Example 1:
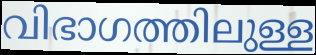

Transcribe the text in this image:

വിഭാഗത്തിലുള്ള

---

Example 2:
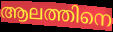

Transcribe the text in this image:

ആലത്തിനെ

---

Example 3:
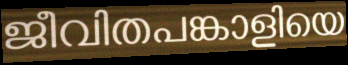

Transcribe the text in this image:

ജീവിതപങ്കാളിയെ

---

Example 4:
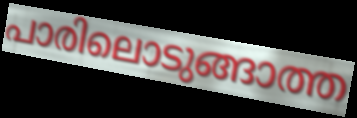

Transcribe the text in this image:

പാരിലൊടുങ്ങാത്ത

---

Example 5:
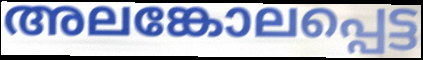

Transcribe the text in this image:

അലങ്കോലപ്പെട്ട